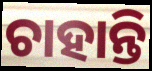
ଚାହାନ୍ତି